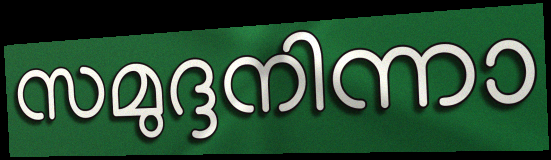
സമുദ്ദനിന്നാ